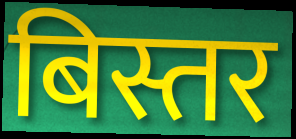
बिस्तर